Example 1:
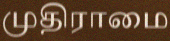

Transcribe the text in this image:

முதிராமை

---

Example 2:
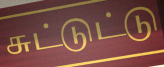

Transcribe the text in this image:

சுட்டுட்டு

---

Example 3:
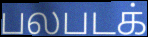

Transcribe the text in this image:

பலபடக்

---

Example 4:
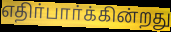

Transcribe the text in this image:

எதிர்பார்க்கின்றது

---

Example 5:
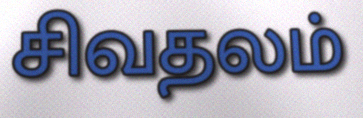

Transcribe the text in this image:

சிவதலம்